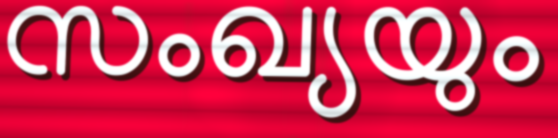
സംഖ്യയും